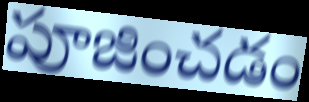
పూజించడం